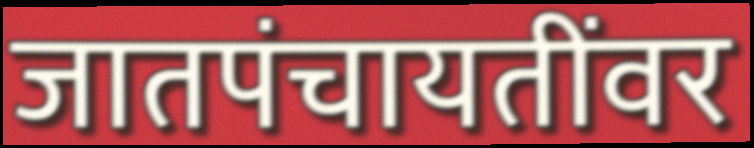
जातपंचायतींवर